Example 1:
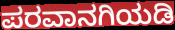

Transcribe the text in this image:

ಪರವಾನಗಿಯಡಿ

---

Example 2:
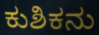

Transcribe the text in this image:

ಕುಶಿಕನು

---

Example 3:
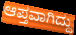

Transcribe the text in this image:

ಆಪ್ತವಾಗಿದ್ದು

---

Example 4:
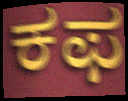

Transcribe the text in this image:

ಕಫ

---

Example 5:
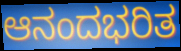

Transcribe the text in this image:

ಆನಂದಭರಿತ